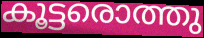
കൂട്ടരൊത്തു